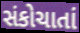
સંકોચાતાં